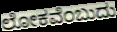
ಲೋಕವೆಂಬುದು